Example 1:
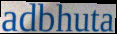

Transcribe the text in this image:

adbhuta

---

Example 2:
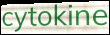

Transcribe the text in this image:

cytokine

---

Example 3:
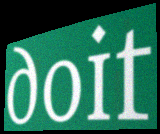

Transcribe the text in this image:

doit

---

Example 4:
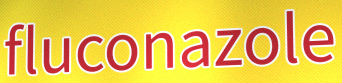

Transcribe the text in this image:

fluconazole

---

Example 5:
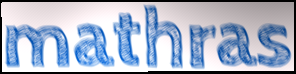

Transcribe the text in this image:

mathras